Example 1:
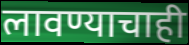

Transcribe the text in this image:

लावण्याचाही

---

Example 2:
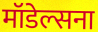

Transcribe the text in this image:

मॉडेल्सना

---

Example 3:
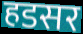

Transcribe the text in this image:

हडसर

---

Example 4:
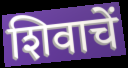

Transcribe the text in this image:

शिवाचें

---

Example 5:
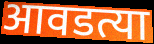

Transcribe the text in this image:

आवडत्या